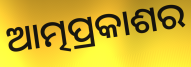
ଆତ୍ମପ୍ରକାଶର